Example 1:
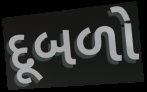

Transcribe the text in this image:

દૂબળો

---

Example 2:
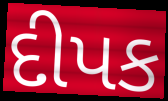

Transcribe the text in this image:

દીપક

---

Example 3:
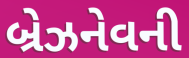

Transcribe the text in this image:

બ્રેઝનેવની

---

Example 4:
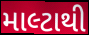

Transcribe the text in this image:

માલ્ટાથી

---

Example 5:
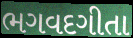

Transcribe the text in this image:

ભગવદગીતા